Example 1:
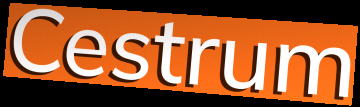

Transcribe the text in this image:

Cestrum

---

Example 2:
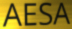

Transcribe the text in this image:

AESA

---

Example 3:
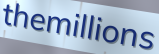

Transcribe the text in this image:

themillions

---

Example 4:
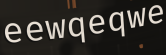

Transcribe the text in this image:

eewqeqwe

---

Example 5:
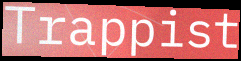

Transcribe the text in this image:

Trappist